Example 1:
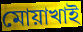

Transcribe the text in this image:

মোয়াখাই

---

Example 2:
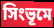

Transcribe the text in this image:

সিংভূমে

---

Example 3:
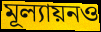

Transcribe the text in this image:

মূল্যায়নও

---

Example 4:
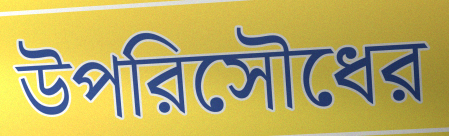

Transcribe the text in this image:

উপরিসৌধের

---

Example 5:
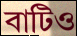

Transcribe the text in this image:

বাটিও